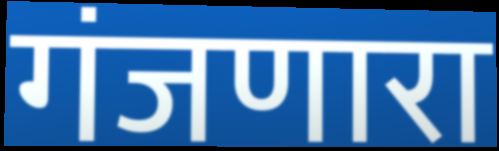
गंजणारा